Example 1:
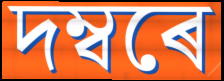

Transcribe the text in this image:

দম্বৰে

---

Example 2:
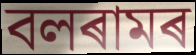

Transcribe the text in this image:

বলৰামৰ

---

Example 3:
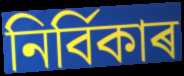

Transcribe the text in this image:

নিৰ্বিকাৰ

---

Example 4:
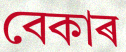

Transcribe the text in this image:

বেকাৰ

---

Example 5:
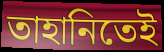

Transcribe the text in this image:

তাহানিতেই